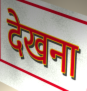
देखना